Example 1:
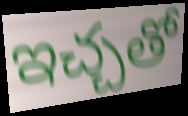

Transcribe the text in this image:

ఇచ్చతో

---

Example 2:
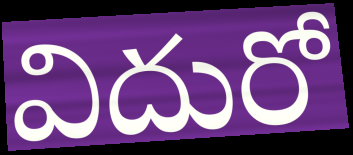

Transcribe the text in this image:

విదురో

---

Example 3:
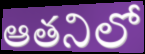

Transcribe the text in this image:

ఆతనిలో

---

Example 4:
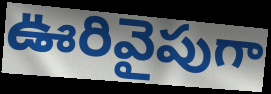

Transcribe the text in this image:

ఊరివైపుగా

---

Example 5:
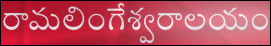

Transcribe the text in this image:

రామలింగేశ్వరాలయం